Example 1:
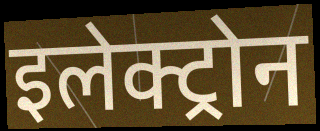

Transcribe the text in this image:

इलेक्ट्रोन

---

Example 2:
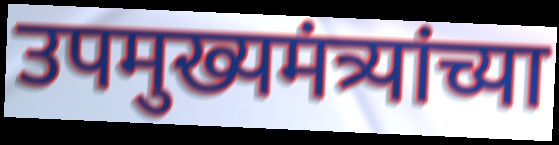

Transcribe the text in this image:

उपमुख्यमंत्र्यांच्या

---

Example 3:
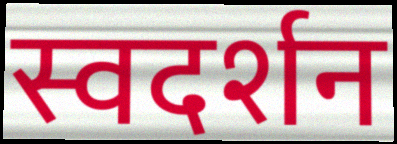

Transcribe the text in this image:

स्वदर्शन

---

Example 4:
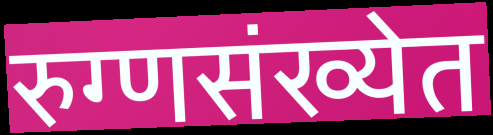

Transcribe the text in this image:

रुग्णसंख्येत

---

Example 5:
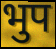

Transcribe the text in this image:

भुप